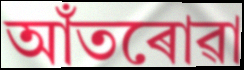
আঁতৰোৱা